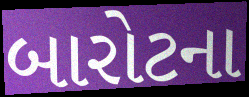
બારોટના